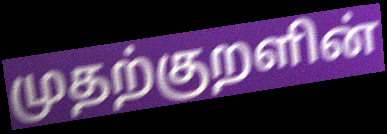
முதற்குறளின்